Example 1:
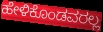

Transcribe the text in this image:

ಹೇಳಿಕೊಂಡವರಲ್ಲ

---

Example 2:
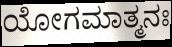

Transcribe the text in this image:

ಯೋಗಮಾತ್ಮನಃ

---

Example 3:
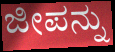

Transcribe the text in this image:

ಜೀಪನ್ನು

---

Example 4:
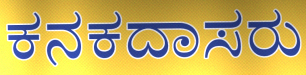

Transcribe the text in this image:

ಕನಕದಾಸರು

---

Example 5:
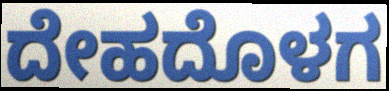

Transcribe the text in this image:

ದೇಹದೊಳಗ